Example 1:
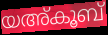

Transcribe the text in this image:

യഅ്കൂബ്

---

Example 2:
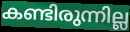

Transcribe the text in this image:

കണ്ടിരുന്നില്ല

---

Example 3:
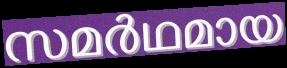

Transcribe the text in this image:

സമർഥമായ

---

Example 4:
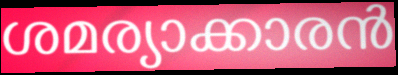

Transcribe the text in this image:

ശമര്യാക്കാരൻ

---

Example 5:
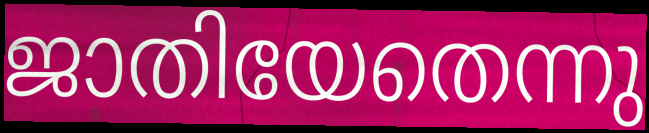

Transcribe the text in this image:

ജാതിയേതെന്നു